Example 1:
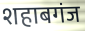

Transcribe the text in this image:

शहाबगंज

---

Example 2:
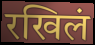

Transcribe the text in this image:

रखिलं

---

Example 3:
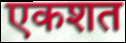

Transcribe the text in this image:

एकशत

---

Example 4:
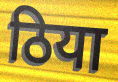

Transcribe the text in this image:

ठिया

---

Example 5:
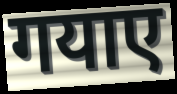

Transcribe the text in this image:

गयाए